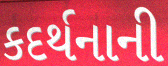
કદર્થનાની